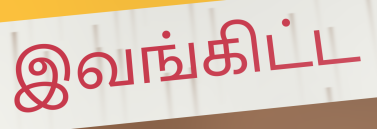
இவங்கிட்ட